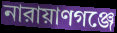
নারায়াণগঞ্জে